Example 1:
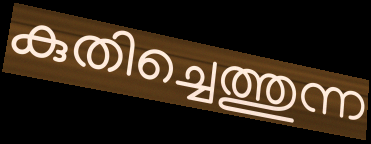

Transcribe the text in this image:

കുതിച്ചെത്തുന്ന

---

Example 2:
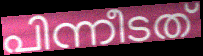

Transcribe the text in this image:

പിന്നീടത്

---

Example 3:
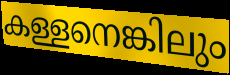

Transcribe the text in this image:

കള്ളനെങ്കിലും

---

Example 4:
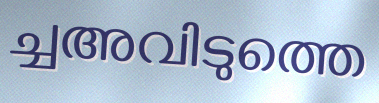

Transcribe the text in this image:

ച്ചഅവിടുത്തെ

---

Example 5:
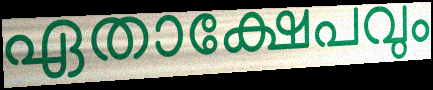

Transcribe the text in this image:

ഏതാക്ഷേപവും